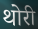
थोरी